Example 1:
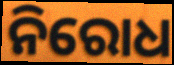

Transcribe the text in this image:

ନିରୋଧ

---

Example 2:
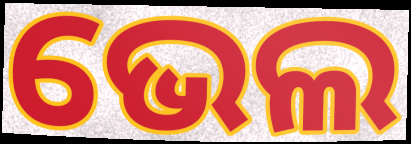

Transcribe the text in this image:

ଭେଲ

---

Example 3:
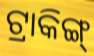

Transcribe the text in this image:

ଟ୍ରାକିଙ୍ଗ୍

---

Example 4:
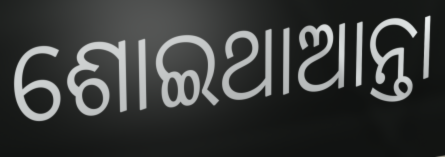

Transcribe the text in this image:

ଶୋଇଥାଆନ୍ତା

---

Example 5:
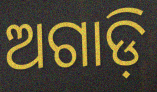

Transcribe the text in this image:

ଅଗାଡ଼ି